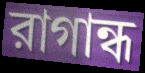
রাগান্ধ